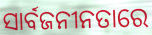
ସାର୍ବଜନୀନତାରେ